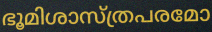
ഭൂമിശാസ്ത്രപരമോ